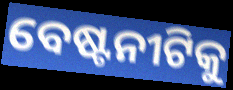
ବେଷ୍ଟନୀଟିକୁ